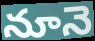
నూనె